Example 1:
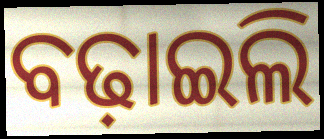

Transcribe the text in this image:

ବଢ଼ାଇଲି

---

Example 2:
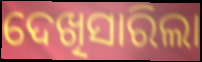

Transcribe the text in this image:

ଦେଖିସାରିଲା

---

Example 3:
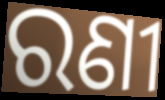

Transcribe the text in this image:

ରଣୀ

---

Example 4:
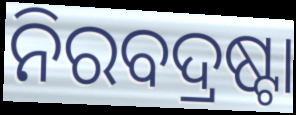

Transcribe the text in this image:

ନିରବଦ୍ରଷ୍ଟା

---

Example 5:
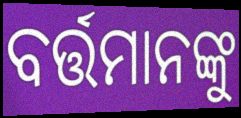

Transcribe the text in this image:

ବର୍ତ୍ତମାନଙ୍କୁ